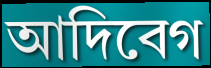
আদিবেগ